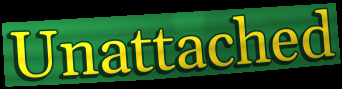
Unattached